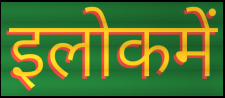
इलोकमें